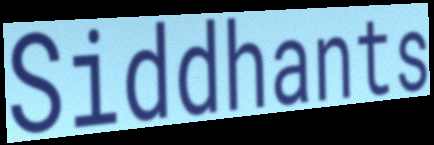
Siddhants